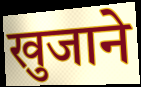
खुजाने